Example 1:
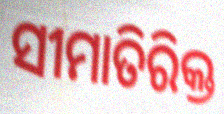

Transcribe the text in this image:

ସୀମାତିରିକ୍ତ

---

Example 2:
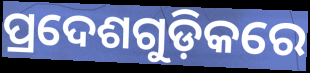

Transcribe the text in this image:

ପ୍ରଦେଶଗୁଡ଼ିକରେ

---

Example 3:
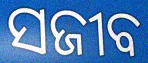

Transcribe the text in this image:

ସଜୀବ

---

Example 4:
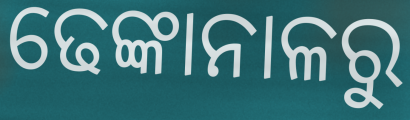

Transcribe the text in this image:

ଢେଙ୍କାନାଳରୁ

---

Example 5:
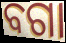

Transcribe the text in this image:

ବଗା